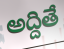
అద్దితే